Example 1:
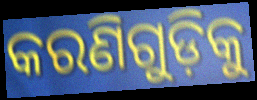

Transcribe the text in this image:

କରଣିଗୁଡ଼ିକୁ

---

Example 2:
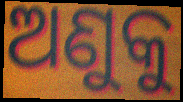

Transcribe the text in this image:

ଅଣୁକୁ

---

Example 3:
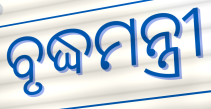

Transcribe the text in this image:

ବୃଦ୍ଧମନ୍ତ୍ରୀ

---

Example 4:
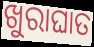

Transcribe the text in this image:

ଖୁରାଘାତ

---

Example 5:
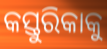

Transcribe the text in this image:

କସ୍ତୁରିକାକୁ